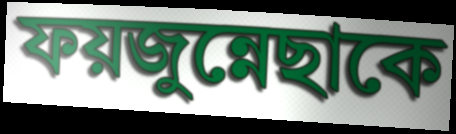
ফয়জুন্নেছাকে